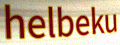
helbeku